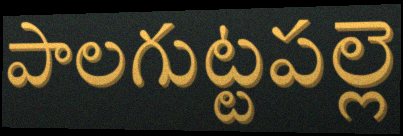
పాలగుట్టపల్లె